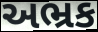
અભ્રક